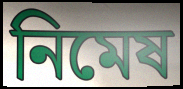
নিমেষ